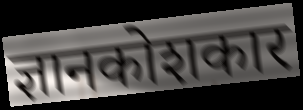
ज्ञानकोशकार